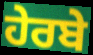
ਹੇਰਬੇ